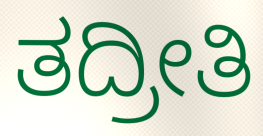
ತದ್ರೀತಿ